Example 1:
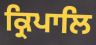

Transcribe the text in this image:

ਕ੍ਰਿਪਾਲਿ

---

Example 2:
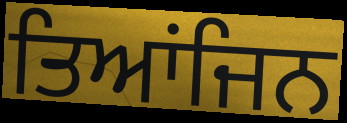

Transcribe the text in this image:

ਤਿਆਂਜਿਨ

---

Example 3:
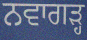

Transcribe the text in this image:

ਨਵਾਗੜ੍ਹ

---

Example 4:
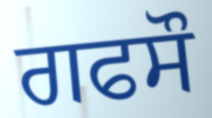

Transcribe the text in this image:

ਗਫਸੌ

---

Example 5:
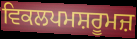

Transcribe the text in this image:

ਵਿਕਲਪਮਸ਼ਰੂਮਜ਼